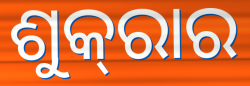
ଶୁକ୍‌ରାର